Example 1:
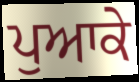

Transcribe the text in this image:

ਪੁਆਕੇ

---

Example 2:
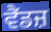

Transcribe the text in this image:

ਵੈਂਡਜ਼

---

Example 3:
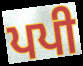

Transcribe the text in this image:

ਪਪੀ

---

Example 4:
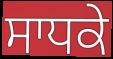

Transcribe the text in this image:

ਸਾਧਕੇ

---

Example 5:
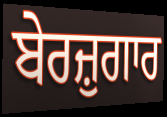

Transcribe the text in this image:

ਬੇਰਜ਼ੁਗਾਰ